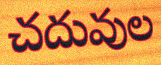
చదువుల